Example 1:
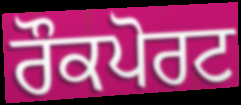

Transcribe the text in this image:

ਰੌਕਪੋਰਟ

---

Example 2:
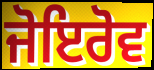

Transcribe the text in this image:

ਜੋਇਰੋਵ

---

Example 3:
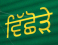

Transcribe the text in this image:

ਵਿੱਛੋੜੇ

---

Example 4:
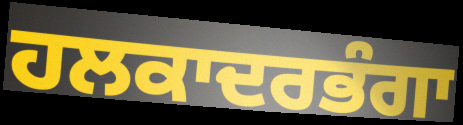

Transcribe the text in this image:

ਹਲਕਾਦਰਭੰਗਾ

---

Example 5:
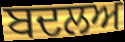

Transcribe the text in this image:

ਬਦਲਅ